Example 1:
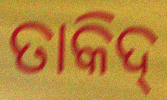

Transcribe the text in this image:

ତାକିଦ୍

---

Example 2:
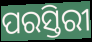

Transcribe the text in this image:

ପରସ୍ତିରୀ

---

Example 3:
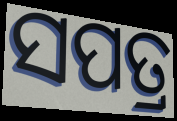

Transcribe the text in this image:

ସପତ୍ର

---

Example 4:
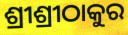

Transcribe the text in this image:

ଶ୍ରୀଶ୍ରୀଠାକୁର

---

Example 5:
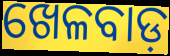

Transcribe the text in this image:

ଖେଳବାଡ଼